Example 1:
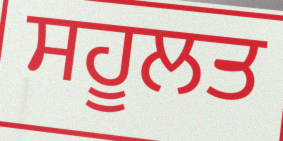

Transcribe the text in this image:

ਸਹੂਲਤ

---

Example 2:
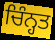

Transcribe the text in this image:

ਚਿੰਨ੍ਹਤ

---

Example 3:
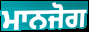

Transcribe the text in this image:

ਮਾਨਜੋਗ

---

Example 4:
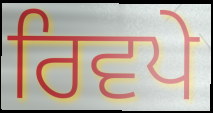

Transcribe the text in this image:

ਰਿਵਪੇ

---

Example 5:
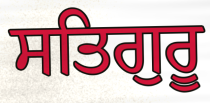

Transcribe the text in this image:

ਸਤਿਗੁਰੂ